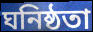
ঘনিষ্ঠতা